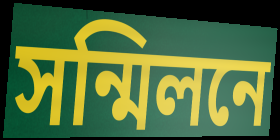
সন্মিলনে